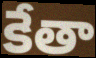
కేతా